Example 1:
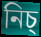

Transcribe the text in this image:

নিচ্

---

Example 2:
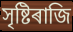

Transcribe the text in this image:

সৃষ্টিৰাজি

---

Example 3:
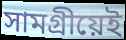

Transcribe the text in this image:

সামগ্ৰীয়েই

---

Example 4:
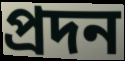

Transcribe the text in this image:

প্ৰদন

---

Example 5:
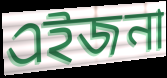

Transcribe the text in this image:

এইজনা